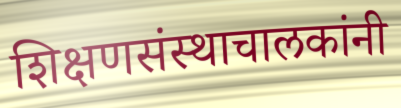
शिक्षणसंस्थाचालकांनी